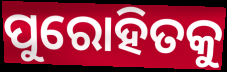
ପୁରୋହିତକୁ